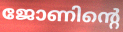
ജോണിന്റെ